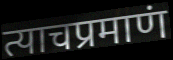
त्याचप्रमाणं